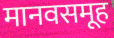
मानवसमूह